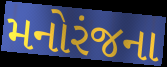
મનોરંજના